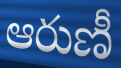
ఆరుణీ